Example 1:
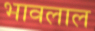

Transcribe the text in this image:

भावलाल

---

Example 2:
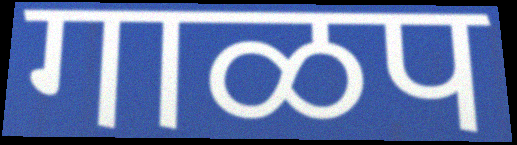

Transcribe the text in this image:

गाळप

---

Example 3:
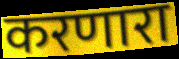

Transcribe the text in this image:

करणारा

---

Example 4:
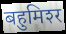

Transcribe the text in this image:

बहुमिश्र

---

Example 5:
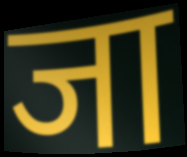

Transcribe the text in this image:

जा